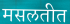
मसलतीत